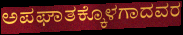
ಅಪಘಾತಕ್ಕೊಳಗಾದವರ